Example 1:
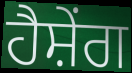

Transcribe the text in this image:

ਹੈਸ਼ੇਂਗ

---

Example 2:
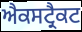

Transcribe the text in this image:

ਐਕਸਟ੍ਰੈਕਟ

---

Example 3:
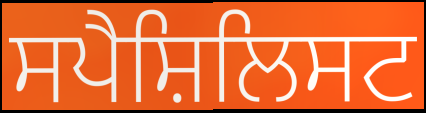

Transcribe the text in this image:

ਸਪੈਸ਼ਿਲਿਸਟ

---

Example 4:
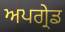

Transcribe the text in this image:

ਅਪਗ੍ਰੇਡ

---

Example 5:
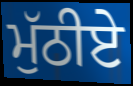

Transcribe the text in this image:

ਮੁੱਠੀਏ